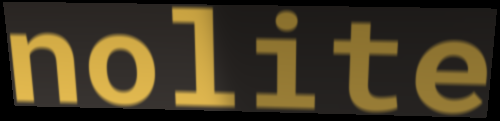
nolite